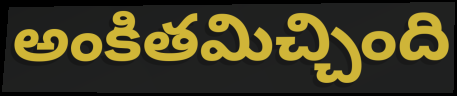
అంకితమిచ్చింది